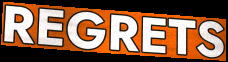
REGRETS